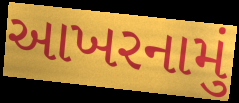
આખરનામું